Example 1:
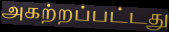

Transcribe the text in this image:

அகற்றப்பட்டது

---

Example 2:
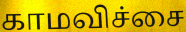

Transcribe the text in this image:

காமவிச்சை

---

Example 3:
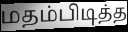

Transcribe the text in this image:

மதம்பிடித்த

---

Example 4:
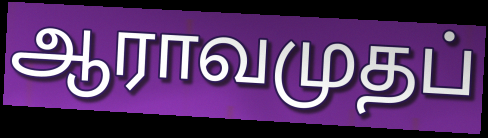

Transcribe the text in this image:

ஆராவமுதப்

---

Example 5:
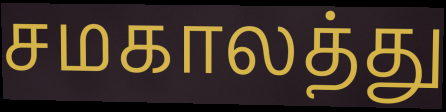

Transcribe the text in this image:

சமகாலத்து